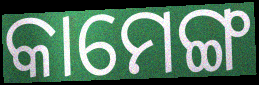
କାମେଙ୍ଗ